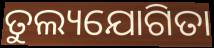
ତୁଲ୍ୟଯୋଗିତା